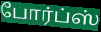
போர்ப்ஸ்